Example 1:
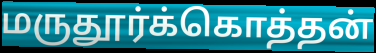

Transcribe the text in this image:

மருதூர்க்கொத்தன்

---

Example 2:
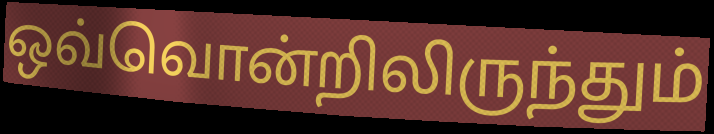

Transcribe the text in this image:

ஒவ்வொன்றிலிருந்தும்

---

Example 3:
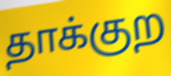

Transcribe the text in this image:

தாக்குற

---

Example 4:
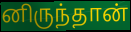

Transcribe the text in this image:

னிருந்தான்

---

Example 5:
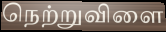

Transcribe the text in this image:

நெற்றுவிளை